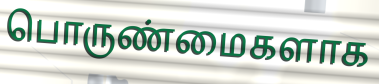
பொருண்மைகளாக